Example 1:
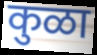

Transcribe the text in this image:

कुळा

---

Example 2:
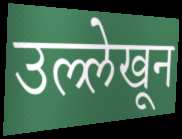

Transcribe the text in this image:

उल्लेखून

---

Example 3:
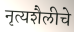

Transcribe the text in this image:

नृत्यशैलीचे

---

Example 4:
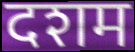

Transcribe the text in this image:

दशम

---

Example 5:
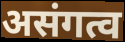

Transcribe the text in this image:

असंगत्व